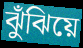
ঝুঁঝিয়ে